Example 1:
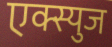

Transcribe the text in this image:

एक्स्युज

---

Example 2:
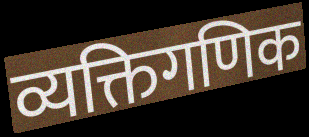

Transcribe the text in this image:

व्यक्तिगणिक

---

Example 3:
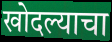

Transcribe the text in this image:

खोदल्याचा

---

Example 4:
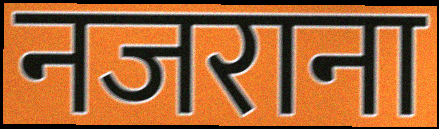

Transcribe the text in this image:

नजराना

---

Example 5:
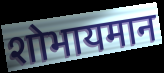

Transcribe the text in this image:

शोभायमान